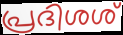
പ്രദിശശ്